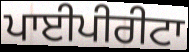
ਪਾਈਪੀਰੀਟਾ